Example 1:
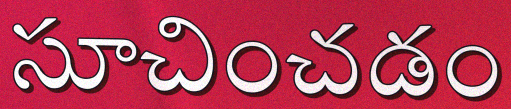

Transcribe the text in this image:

సూచించడం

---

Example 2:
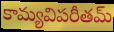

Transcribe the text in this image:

కామ్యవిపరీతమ్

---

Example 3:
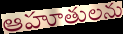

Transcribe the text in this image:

ఆహూతులను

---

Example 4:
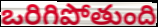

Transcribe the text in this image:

ఒరిగిపోతుంది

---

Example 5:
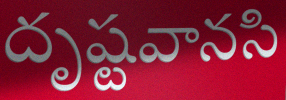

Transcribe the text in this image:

దృష్టవానసి